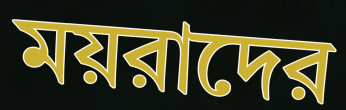
ময়রাদের